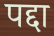
पद्दा